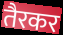
तैरकर